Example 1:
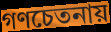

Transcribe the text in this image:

গণচেতনায়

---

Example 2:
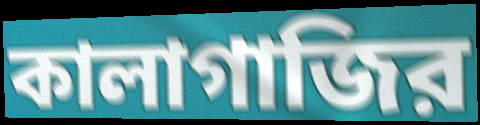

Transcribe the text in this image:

কালাগাজির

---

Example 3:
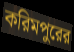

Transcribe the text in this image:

করিমপুরের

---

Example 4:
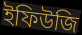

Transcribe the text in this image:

ইফিউজি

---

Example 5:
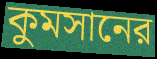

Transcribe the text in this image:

কুমসানের